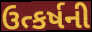
ઉત્કર્ષની